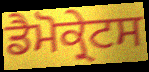
ਡੈਮੋਕ੍ਰੇਟਸ